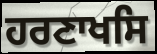
ਹਰਣਾਖਸਿ